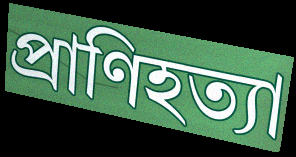
প্রাণিহত্যা